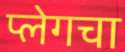
प्लेगचा